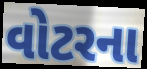
વોટરના